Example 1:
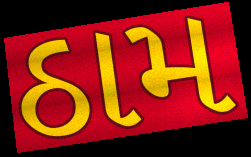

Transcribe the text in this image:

ઠામ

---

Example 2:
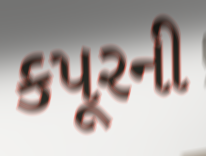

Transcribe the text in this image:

કપૂરની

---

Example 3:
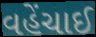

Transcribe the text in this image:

વહેંચાઈ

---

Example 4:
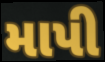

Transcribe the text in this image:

માપી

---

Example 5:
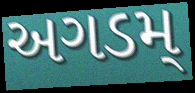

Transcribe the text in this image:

અગડમ્